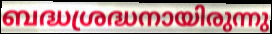
ബദ്ധശ്രദ്ധനായിരുന്നു